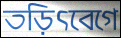
তড়িৎবেগে